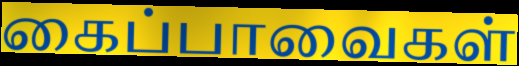
கைப்பாவைகள்